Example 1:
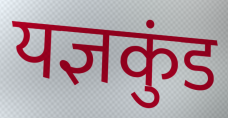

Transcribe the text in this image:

यज्ञकुंड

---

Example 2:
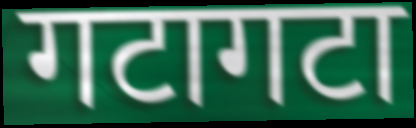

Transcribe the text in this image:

गटागटा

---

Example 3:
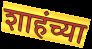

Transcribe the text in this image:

शाहंच्या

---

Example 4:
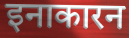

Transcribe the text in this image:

इनाकारन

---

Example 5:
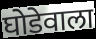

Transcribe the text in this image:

घोडेवाला